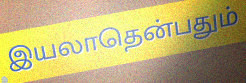
இயலாதென்பதும்